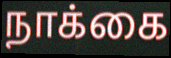
நாக்கை